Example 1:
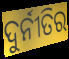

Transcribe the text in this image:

ଦୁର୍ନୀତିର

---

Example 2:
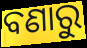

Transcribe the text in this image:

ବଣାରୁ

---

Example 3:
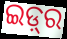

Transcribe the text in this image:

ଇଡ଼୍‍ର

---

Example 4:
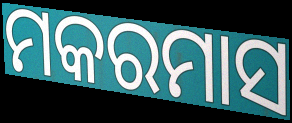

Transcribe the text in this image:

ମକରମାସ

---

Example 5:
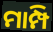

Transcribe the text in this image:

ମାମ୍ପି